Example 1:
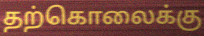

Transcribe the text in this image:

தற்கொலைக்கு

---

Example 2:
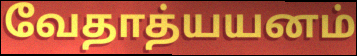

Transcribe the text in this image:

வேதாத்யயனம்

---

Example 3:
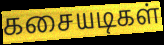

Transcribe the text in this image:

கசையடிகள்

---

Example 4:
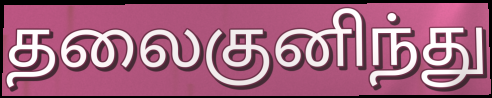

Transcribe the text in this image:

தலைகுனிந்து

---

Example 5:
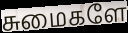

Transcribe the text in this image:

சுமைகளே